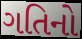
ગતિનો